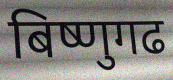
बिष्णुगढ